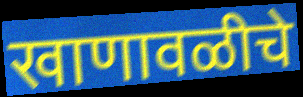
खाणावळीचे